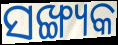
ସଙ୍ଖ୍ୟକ